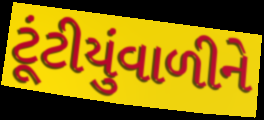
ટૂંટીયુંવાળીને